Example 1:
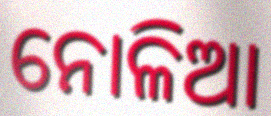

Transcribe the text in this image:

ନୋଳିଆ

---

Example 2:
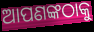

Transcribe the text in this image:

ଆପଣଙ୍କଠାକୁ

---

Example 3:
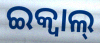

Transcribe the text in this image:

ଇକ୍ୱାଲ୍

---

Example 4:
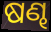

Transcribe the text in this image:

ଷଣ୍ଢ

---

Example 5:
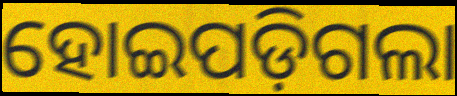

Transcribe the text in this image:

ହୋଇପଡ଼ିଗଲା